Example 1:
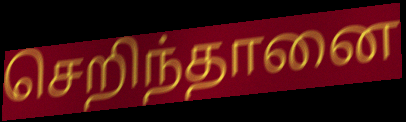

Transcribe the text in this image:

செறிந்தானை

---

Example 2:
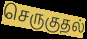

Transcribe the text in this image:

செருகுதல்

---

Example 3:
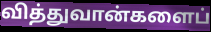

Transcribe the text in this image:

வித்துவான்களைப்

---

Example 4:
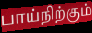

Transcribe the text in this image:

பாய்நிற்கும்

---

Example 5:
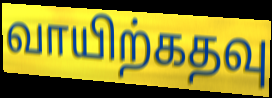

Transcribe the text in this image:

வாயிற்கதவு